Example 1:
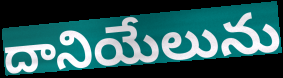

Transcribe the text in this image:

దానియేలును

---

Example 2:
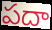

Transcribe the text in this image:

పదా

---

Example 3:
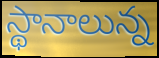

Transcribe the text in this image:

స్థానాలున్న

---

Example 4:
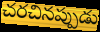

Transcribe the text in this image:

చరచినప్పుడు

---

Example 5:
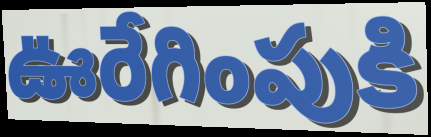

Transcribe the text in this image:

ఊరేగింపుకి